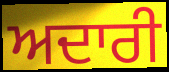
ਅਦਾਰੀ